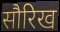
सौरिख